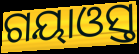
ଗୟାଓସ୍ତ